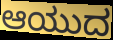
ಆಯುದ